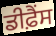
ਡੀਫ਼ੈਂਸ